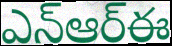
ఎన్ఆర్ఈ